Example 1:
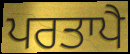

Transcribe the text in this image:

ਪਰਤਾਪੈ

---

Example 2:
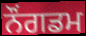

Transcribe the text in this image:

ਨੌਂਗਡਮ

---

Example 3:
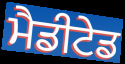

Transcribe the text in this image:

ਮੈਡੀਟੇਡ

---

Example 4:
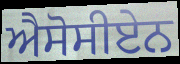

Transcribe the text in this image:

ਐਸੋਸੀਏਨ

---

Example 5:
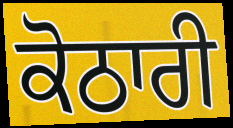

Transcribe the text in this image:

ਕੋਠਾਰੀ